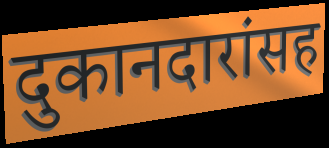
दुकानदारांसह